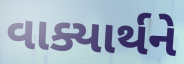
વાક્યાર્થને